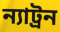
ন্যাট্রন